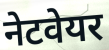
नेटवेयर